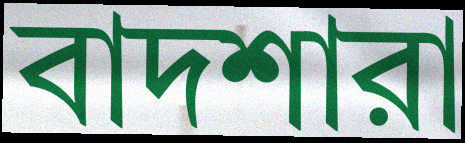
বাদশারা